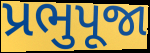
પ્રભુપૂજા